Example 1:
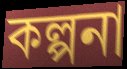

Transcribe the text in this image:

কল্পনা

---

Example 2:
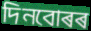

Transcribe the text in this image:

দিনবোৰৰ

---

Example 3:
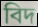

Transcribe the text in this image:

বিদ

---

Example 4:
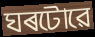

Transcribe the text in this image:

ঘৰটোৱে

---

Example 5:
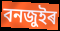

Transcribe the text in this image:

বনজুইৰ